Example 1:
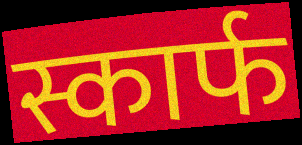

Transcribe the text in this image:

स्कार्फ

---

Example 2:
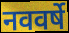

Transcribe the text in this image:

नववर्षे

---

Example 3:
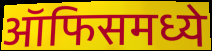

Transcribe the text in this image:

ऑफिसमध्ये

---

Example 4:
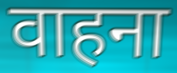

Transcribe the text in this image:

वाहना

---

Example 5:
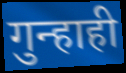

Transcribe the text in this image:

गुन्हाही